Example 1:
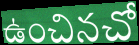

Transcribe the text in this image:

ఉంచినచో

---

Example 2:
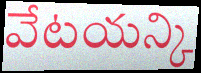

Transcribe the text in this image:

వేటయన్కి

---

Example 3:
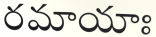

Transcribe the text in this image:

రమాయాః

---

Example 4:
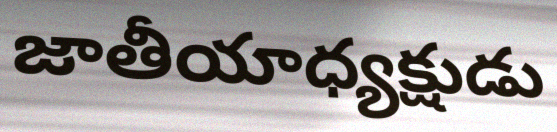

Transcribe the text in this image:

జాతీయాధ్యక్షుడు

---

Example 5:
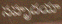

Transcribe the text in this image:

సహృదయా